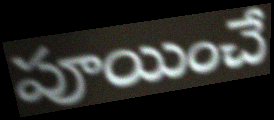
పూయించే